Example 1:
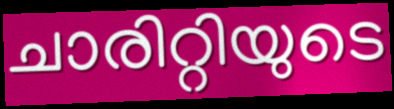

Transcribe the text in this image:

ചാരിറ്റിയുടെ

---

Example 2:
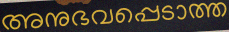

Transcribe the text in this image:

അനുഭവപ്പെടാത്ത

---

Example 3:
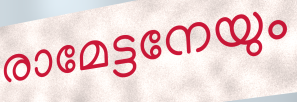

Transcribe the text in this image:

രാമേട്ടനേയും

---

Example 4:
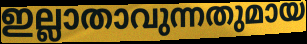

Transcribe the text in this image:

ഇല്ലാതാവുന്നതുമായ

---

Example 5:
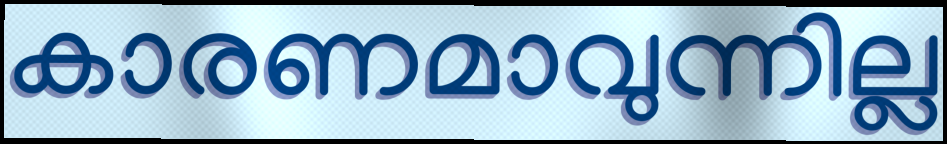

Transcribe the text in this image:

കാരണമാവുന്നില്ല